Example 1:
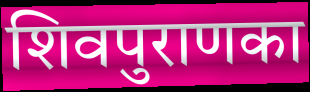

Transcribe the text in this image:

शिवपुराणका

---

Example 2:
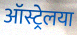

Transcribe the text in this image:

ऑस्ट्रेलया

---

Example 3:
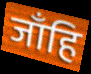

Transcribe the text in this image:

जाँहि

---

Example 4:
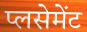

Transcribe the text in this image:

प्लसेमेंट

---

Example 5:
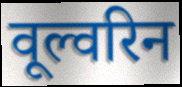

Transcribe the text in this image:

वूल्वरिन